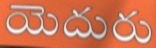
యెదురు